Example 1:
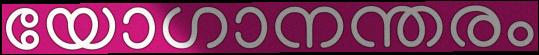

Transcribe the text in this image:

യോഗാനന്തരം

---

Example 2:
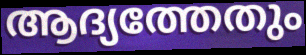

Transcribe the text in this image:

ആദ്യത്തേതും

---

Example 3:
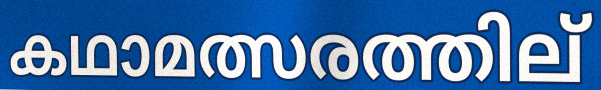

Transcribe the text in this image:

കഥാമത്സരത്തില്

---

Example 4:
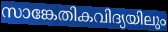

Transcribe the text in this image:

സാങ്കേതികവിദ്യയിലും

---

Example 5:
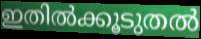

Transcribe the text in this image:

ഇതിൽക്കൂടുതൽ